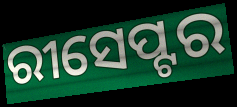
ରୀସେପ୍ଟର